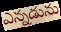
ఎన్నడును